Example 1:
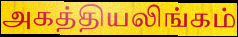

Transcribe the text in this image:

அகத்தியலிங்கம்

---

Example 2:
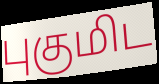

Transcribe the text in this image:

புகுமிட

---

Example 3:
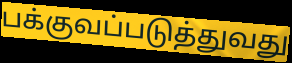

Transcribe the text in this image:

பக்குவப்படுத்துவது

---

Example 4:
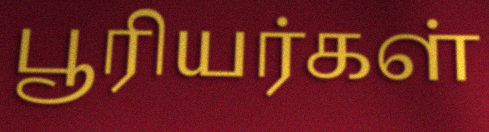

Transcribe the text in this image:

பூரியர்கள்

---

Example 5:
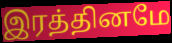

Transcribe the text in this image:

இரத்தினமே